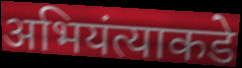
अभियंत्याकडे